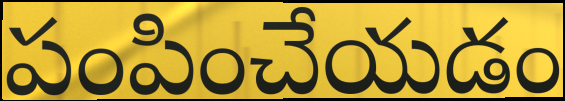
పంపించేయడం